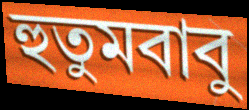
হুতুমবাবু